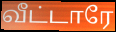
வீட்டாரே